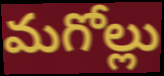
మగోల్లు